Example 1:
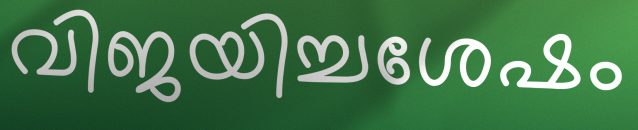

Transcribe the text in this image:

വിജയിച്ചശേഷം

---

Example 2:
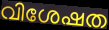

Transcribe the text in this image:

വിശേഷത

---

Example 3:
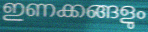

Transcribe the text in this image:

ഇണക്കങ്ങളും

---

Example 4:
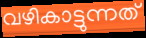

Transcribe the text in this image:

വഴികാട്ടുന്നത്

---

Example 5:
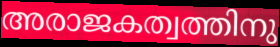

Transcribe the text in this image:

അരാജകത്വത്തിനു